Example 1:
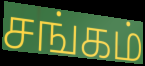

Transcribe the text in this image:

சங்கம்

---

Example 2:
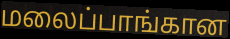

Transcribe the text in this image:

மலைப்பாங்கான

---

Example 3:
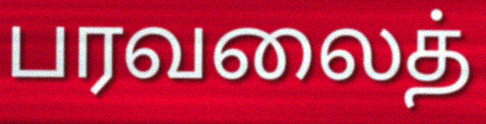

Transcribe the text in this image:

பரவலைத்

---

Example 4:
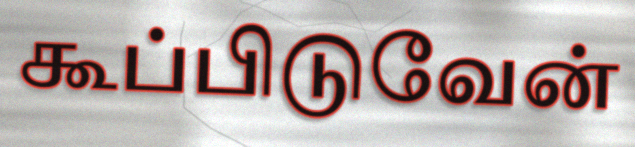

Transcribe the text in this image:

கூப்பிடுவேன்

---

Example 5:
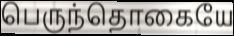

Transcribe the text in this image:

பெருந்தொகையே